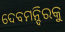
ଦେବମନ୍ଦିରକୁ